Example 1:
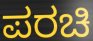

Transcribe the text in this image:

ಪರಚಿ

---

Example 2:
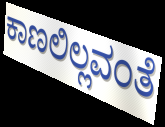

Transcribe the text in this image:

ಕಾಣಲಿಲ್ಲವಂತೆ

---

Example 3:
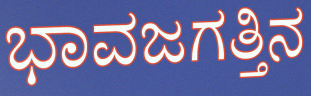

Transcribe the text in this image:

ಭಾವಜಗತ್ತಿನ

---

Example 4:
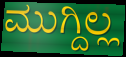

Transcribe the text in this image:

ಮುಗ್ದಿಲ್ಲ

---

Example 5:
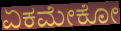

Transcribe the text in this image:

ಏಕಮೇಕೋ